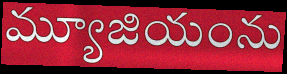
మ్యూజియంను